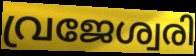
വ്രജേശ്വരി